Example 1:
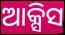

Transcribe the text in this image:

ଆକ୍ସିସ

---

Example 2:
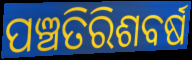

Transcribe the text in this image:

ପଞ୍ଚତିରିଶବର୍ଷ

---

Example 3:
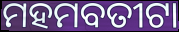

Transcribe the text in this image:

ମହମବତୀଟା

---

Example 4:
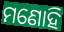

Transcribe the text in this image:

ମଣୋହି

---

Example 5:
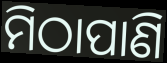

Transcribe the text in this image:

ମିଠାପାଣି